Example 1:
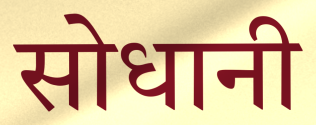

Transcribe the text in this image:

सोधानी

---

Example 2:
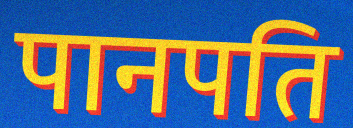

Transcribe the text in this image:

पानपति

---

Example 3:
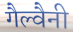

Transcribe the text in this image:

गैल्वैनी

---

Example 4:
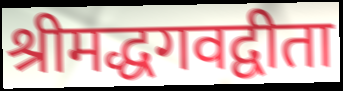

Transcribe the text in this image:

श्रीमद्धगवद्वीता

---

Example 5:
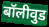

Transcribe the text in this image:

बॉलीवुड